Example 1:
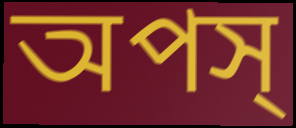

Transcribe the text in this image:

অপস্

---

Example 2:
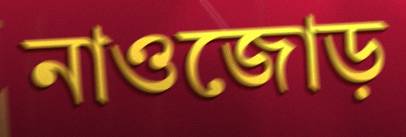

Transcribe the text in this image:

নাওজোড়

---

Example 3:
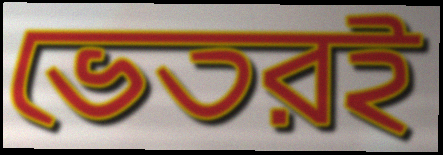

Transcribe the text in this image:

ভেতরই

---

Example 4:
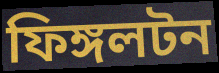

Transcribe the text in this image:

ফিঙ্গলটন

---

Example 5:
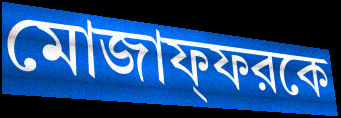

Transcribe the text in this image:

মোজাফ্ফরকে